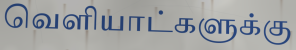
வெளியாட்களுக்கு